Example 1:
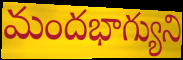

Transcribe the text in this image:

మందభాగ్యుని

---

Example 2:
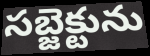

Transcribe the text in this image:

సబ్జెక్టును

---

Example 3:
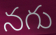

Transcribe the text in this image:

నగు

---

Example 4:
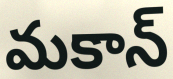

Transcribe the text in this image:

మకాన్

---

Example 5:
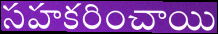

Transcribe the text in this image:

సహకరించాయి